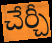
చేర్చీ